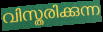
വിസ്തരിക്കുന്ന